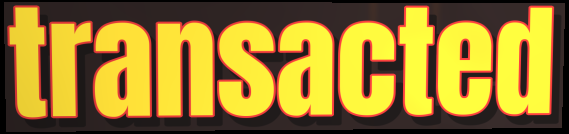
transacted